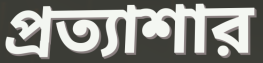
প্রত্যাশার